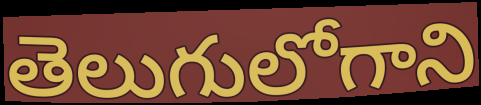
తెలుగులోగాని